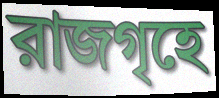
রাজগৃহে